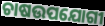
ଚାଷଉପଯୋଗୀ